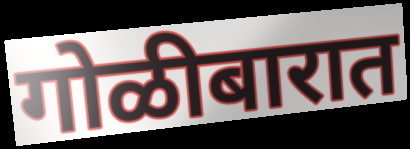
गोळीबारात